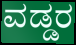
ವಡ್ಡರ